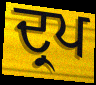
ਦ੍ਰਪ